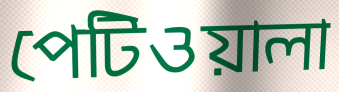
পেটিওয়ালা